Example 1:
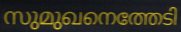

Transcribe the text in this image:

സുമുഖനെത്തേടി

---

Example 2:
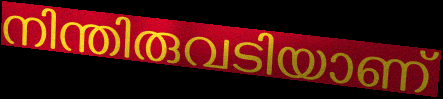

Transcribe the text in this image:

നിന്തിരുവടിയാണ്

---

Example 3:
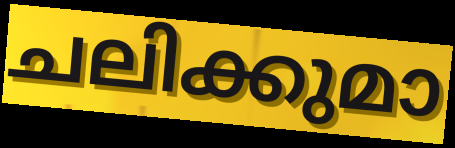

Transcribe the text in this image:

ചലിക്കുമാ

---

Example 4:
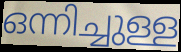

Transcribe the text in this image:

ഒന്നിച്ചുള്ള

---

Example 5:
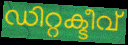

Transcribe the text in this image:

ഡിറ്റക്ടീവ്